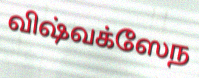
விஷ்வக்ஸேந